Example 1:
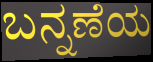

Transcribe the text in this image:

ಬನ್ನಣೆಯ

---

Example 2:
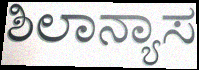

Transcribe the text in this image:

ಶಿಲಾನ್ಯಾಸ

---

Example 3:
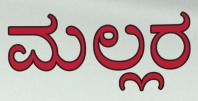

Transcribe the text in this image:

ಮಲ್ಲರ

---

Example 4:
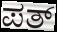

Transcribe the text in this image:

ಪತ್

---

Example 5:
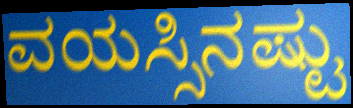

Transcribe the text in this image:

ವಯಸ್ಸಿನಷ್ಟು